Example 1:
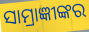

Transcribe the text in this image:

ସାମ୍ରାଜ୍ଞୀଙ୍କର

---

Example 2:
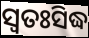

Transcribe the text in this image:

ସ୍ବତଃସିଦ୍ଧ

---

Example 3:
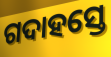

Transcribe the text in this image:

ଗଦାହସ୍ତେ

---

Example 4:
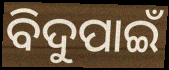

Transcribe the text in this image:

ବିଦୁପାଇଁ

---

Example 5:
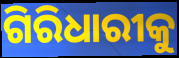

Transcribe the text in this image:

ଗିରିଧାରୀକୁ